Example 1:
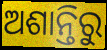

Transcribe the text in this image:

ଅଶାନ୍ତିରୁ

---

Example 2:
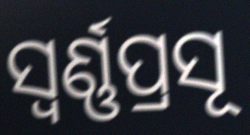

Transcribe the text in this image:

ସ୍ବର୍ଣ୍ଣପ୍ରସୂ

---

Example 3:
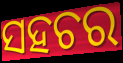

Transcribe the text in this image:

ସହଚର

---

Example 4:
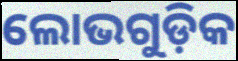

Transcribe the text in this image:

ଲୋଭଗୁଡ଼ିକ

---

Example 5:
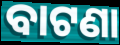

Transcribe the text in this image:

ବାଟଣା